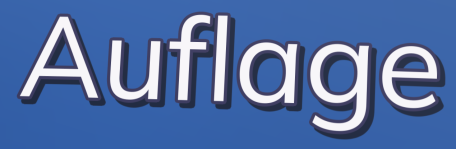
Auflage